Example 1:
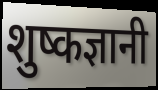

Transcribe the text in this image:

शुष्कज्ञानी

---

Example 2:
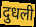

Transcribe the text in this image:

दुधली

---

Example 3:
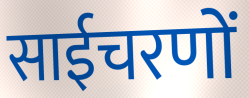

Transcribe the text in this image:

साईचरणों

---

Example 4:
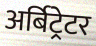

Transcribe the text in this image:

अर्बिट्रेटर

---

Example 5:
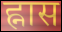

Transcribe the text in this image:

ह्नास